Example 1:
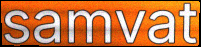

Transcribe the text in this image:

samvat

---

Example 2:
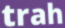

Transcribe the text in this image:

trah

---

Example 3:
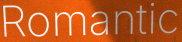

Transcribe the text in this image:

Romantic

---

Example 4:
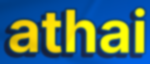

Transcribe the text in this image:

athai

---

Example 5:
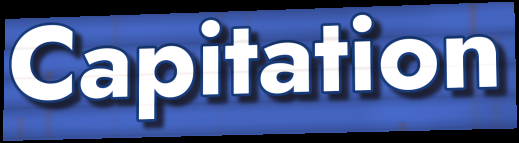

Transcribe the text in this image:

Capitation